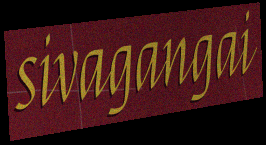
sivagangai